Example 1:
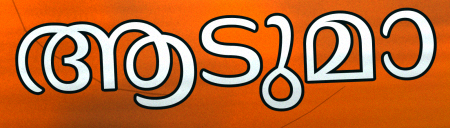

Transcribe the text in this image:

ആടുമാ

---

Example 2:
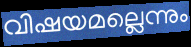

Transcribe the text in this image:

വിഷയമല്ലെന്നും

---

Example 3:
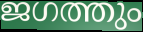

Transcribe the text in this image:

ജഗത്തും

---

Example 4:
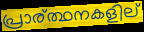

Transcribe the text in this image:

പ്രാര്ത്ഥനകളില്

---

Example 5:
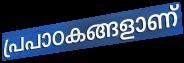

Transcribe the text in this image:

പ്രപാഠകങ്ങളാണ്